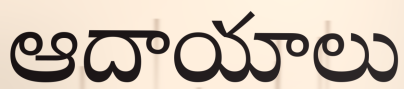
ఆదాయాలు